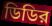
ডিডির